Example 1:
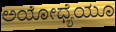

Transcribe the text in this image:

ಅಯೋಧ್ಯೆಯೂ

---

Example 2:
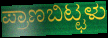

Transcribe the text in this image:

ಪ್ರಾಣಬಿಟ್ಟಳು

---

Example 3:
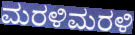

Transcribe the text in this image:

ಮರಳಿಮರಳಿ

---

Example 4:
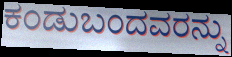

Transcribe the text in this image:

ಕಂಡುಬಂದವರನ್ನು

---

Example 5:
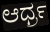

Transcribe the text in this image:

ಆರ್ಧ್ರ